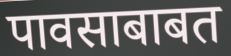
पावसाबाबत